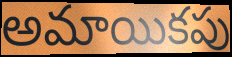
అమాయికపు